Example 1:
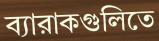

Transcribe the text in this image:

ব্যারাকগুলিতে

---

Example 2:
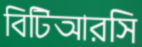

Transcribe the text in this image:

বিটিআরসি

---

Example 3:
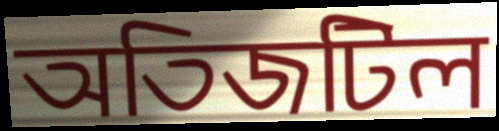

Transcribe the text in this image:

অতিজটিল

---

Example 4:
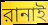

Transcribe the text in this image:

রানাই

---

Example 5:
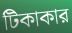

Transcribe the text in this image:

টিকাকার